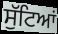
ਸੁੱਟਿਆਂ